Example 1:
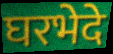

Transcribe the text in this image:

घरभेदे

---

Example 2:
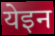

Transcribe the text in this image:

येइन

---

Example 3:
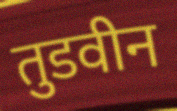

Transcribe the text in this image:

तुडवीन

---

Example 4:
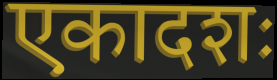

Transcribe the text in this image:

एकादशः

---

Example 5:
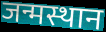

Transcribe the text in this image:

जन्मस्थान